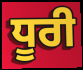
ਧੂਰੀ